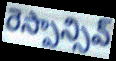
రెస్పాన్సివ్